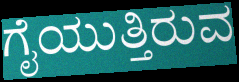
ಗೈಯುತ್ತಿರುವ